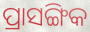
ପ୍ରାସଙ୍ଗିକ